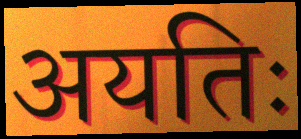
अयतिः